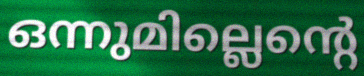
ഒന്നുമില്ലെന്റെ